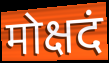
मोक्षदं